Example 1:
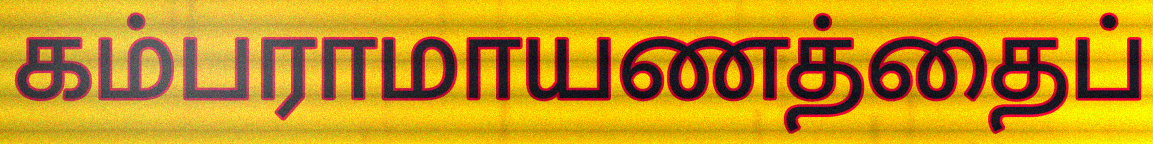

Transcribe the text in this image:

கம்பராமாயணத்தைப்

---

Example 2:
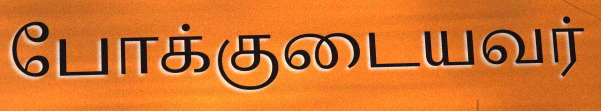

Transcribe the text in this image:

போக்குடையவர்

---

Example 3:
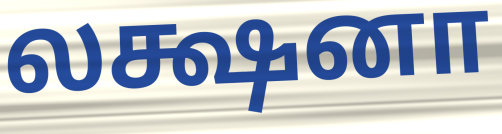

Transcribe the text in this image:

லக்ஷனா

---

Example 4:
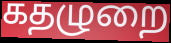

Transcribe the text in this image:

கதழுறை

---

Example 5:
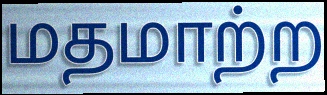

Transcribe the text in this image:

மதமாற்ற